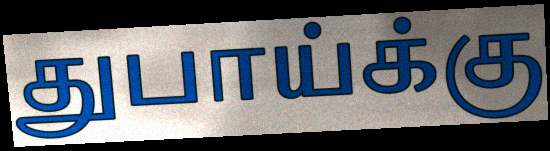
துபாய்க்கு